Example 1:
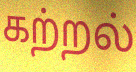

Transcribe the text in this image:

கற்றல்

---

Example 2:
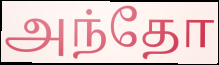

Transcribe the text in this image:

அந்தோ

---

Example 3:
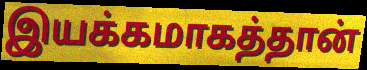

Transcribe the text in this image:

இயக்கமாகத்தான்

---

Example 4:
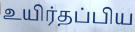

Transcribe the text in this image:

உயிர்தப்பிய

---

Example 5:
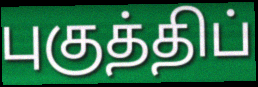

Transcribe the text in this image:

புகுத்திப்